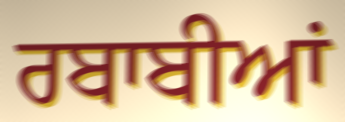
ਰਬਾਬੀਆਂ